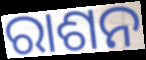
ରାଶନ